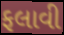
ફલાવી